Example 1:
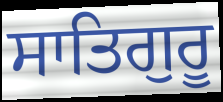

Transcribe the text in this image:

ਸਾਤਿਗੁਰੂ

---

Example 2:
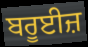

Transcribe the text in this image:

ਬਰੂਈਜ਼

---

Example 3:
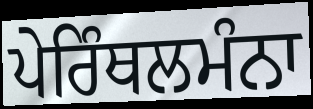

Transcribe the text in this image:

ਪੇਰਿੰਥਲਮੰਨਾ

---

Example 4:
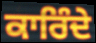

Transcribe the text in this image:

ਕਾਰਿੰਦੇ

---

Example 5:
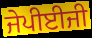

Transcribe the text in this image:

ਜੇਪੀਈਜੀ